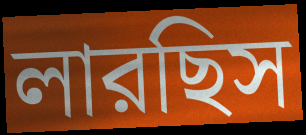
লারছিস